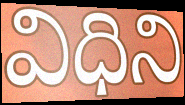
విధిని